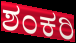
ಶಂಕರಿ